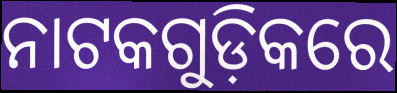
ନାଟକଗୁଡ଼ିକରେ